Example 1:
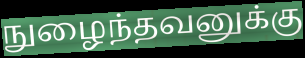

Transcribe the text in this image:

நுழைந்தவனுக்கு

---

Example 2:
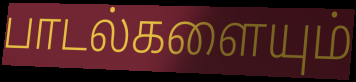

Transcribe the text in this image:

பாடல்களையும்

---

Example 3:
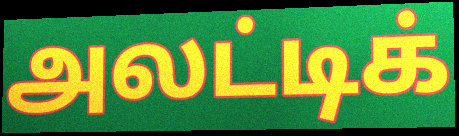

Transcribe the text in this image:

அலட்டிக்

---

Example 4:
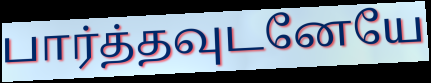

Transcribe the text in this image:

பார்த்தவுடனேயே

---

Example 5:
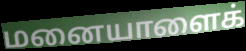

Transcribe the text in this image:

மனையாளைக்